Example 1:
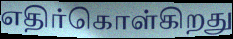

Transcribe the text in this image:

எதிர்கொள்கிறது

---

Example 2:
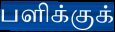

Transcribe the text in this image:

பளிக்குக்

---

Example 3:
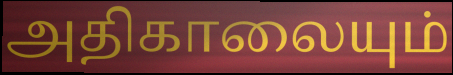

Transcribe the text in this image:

அதிகாலையும்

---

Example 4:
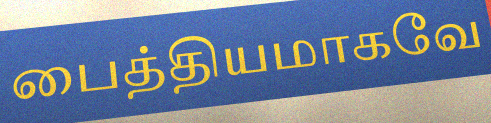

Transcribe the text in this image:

பைத்தியமாகவே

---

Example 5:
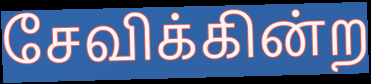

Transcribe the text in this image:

சேவிக்கின்ற